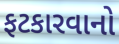
ફટકારવાનો